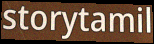
storytamil